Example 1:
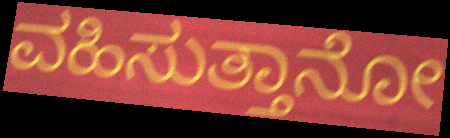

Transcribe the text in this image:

ವಹಿಸುತ್ತಾನೋ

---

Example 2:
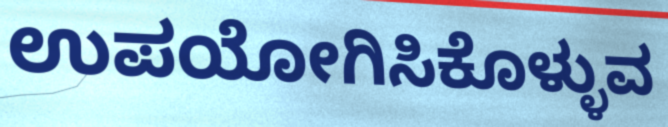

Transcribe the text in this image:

ಉಪಯೋಗಿಸಿಕೊಳ್ಳುವ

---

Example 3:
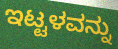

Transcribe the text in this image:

ಇಟ್ಟಳವನ್ನು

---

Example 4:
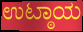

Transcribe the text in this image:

ಉಟ್ಠಾಯ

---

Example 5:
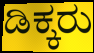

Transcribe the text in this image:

ಡಿಕ್ಕರು